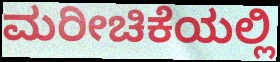
ಮರೀಚಿಕೆಯಲ್ಲಿ